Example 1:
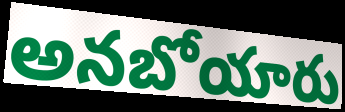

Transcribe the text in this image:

అనబోయారు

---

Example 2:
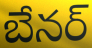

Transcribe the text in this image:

బేనర్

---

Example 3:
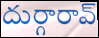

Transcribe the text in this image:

దుర్గారావ్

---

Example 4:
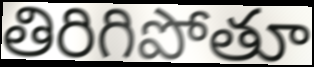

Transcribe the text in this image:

తిరిగిపోతూ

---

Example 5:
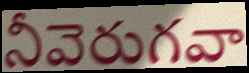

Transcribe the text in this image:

నీవెరుగవా